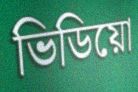
ভিডিয়ো